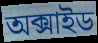
অক্সাইড